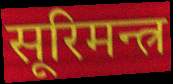
सूरिमन्त्र